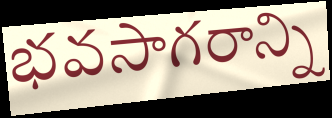
భవసాగరాన్ని